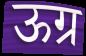
ऊग्र